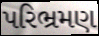
પરિભ્રમણ